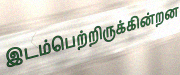
இடம்பெற்றிருக்கின்றன